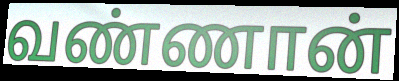
வண்ணான்